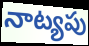
నాట్యపు